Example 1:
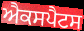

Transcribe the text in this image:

ਐਕਸਪੈਟਸ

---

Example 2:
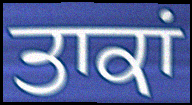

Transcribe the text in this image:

ਤਾਕਾਂ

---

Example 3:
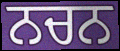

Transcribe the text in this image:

ਨਚਨ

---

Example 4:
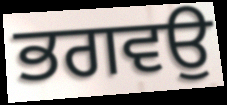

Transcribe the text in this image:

ਭਗਵਉ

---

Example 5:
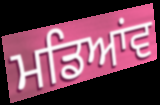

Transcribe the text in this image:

ਮਡਿਆਂਵ